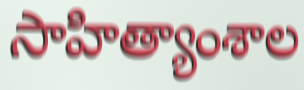
సాహిత్యాంశాల